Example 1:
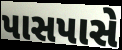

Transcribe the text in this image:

પાસપાસે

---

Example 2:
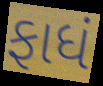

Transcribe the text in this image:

ફાધં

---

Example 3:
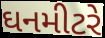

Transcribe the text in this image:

ઘનમીટરે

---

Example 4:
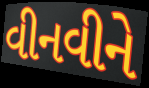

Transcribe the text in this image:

વીનવીને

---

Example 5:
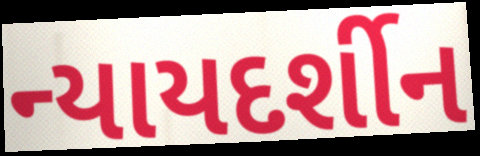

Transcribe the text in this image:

ન્યાયદર્શીન